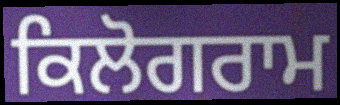
ਕਿਲੋਗਰਾਮ